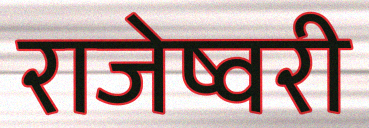
राजेष्वरी